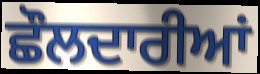
ਛੌਲਦਾਰੀਆਂ